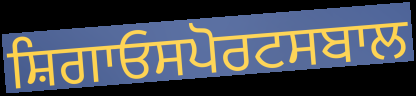
ਸ਼ਿਗਾਓਸਪੋਰਟਸਬਾਲ